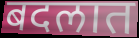
बदलात